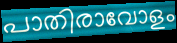
പാതിരാവോളം